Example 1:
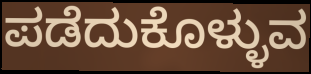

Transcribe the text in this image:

ಪಡೆದುಕೊಳ್ಳುವ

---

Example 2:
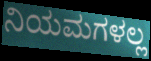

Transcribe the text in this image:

ನಿಯಮಗಳಲ್ಲ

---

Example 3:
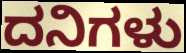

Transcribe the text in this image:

ದನಿಗಳು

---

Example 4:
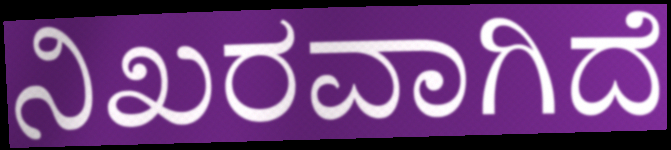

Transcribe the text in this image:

ನಿಖರವಾಗಿದೆ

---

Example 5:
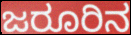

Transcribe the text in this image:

ಜರೂರಿನ